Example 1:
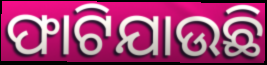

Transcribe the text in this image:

ଫାଟିଯାଉଛି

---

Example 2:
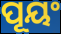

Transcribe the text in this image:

ପୂୟଂ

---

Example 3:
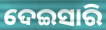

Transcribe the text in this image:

ଦେଇସାରି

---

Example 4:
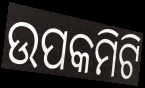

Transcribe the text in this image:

ଉପକମିଟି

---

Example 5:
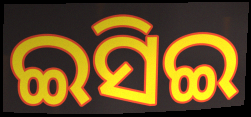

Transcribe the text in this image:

ଇସିଇ